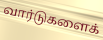
வார்டுகளைக்